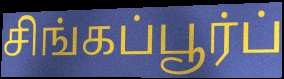
சிங்கப்பூர்ப்